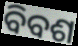
ବିବଶ